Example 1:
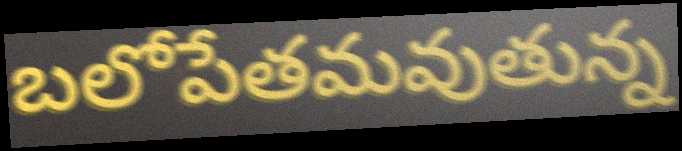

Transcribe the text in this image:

బలోపేతమవుతున్న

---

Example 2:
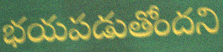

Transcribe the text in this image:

భయపడుతోందని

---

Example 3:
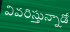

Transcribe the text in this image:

వివరిస్తున్నాడో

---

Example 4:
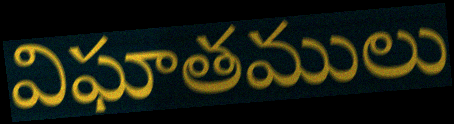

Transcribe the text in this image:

విఘాతములు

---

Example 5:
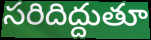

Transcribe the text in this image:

సరిదిద్దుతూ